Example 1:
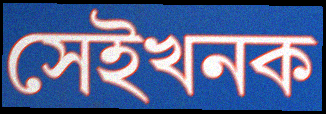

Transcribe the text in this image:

সেইখনক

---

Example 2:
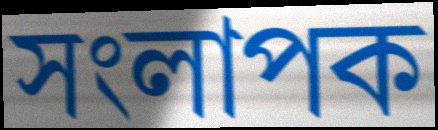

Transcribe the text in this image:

সংলাপক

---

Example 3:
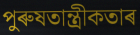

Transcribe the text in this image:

পুৰুষতান্ত্ৰীকতাৰ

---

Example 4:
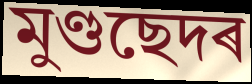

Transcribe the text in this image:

মুণ্ডছেদৰ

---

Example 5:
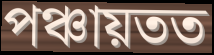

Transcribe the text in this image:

পঞ্চায়তত